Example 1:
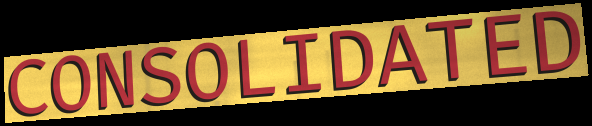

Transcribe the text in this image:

CONSOLIDATED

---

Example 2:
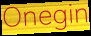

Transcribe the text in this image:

Onegin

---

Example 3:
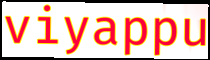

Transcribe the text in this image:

viyappu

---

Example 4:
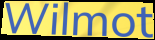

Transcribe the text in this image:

Wilmot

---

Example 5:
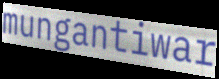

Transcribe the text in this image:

mungantiwar